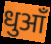
धुआँ